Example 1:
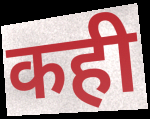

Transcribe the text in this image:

कही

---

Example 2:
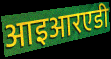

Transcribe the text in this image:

आइआरएडी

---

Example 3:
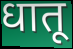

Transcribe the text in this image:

धातू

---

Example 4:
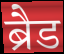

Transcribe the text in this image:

ब्रैड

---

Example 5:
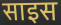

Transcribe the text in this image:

साइस